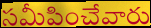
సమీపించేవారు